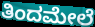
ತಿಂದಮೇಲೆ